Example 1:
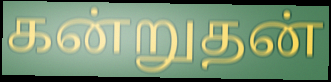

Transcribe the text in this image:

கன்றுதன்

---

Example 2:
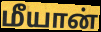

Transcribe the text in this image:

மீயான்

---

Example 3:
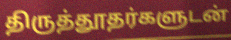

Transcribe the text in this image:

திருத்தூதர்களுடன்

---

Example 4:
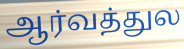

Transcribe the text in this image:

ஆர்வத்துல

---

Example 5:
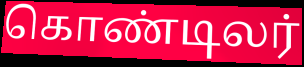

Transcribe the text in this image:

கொண்டிலர்